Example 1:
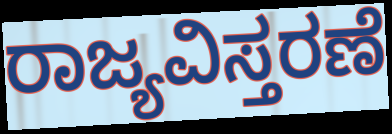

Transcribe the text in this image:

ರಾಜ್ಯವಿಸ್ತರಣೆ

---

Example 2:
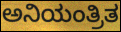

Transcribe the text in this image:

ಅನಿಯಂತ್ರಿತ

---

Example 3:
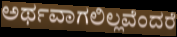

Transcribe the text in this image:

ಅರ್ಥವಾಗಲಿಲ್ಲವೆಂದರೆ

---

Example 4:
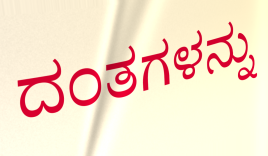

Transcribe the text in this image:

ದಂತಗಳನ್ನು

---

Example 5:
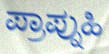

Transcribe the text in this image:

ಪ್ರಾಪ್ನುಹಿ